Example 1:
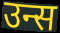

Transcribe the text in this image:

उन्स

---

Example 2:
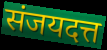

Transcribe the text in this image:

संजयदत्त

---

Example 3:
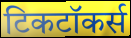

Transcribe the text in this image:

टिकटॉकर्स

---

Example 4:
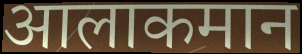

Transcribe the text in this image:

आलाकमान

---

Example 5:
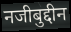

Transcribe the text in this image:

नजीबुद्दीन